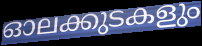
ഓലക്കുടകളും